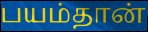
பயம்தான்